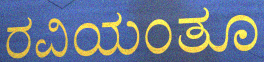
ರವಿಯಂತೂ